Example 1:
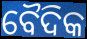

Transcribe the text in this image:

ବୈଦିକ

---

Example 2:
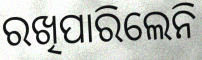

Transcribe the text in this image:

ରଖିପାରିଲେନି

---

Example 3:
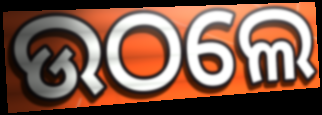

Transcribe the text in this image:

ଉଠଲେ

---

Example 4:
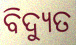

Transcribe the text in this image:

ବିଦ୍ୟୁତ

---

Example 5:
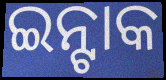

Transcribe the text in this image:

ଇନ୍ଟାକ